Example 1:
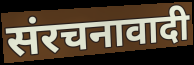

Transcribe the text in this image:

संरचनावादी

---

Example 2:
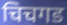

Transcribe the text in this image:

चिचगड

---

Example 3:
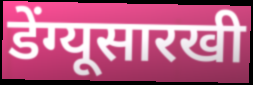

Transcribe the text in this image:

डेंग्यूसारखी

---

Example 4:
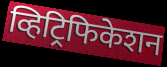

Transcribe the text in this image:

व्हिट्रिफिकेशन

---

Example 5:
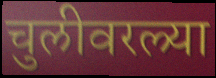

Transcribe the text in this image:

चुलीवरल्या